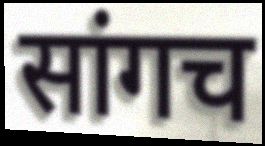
सांगच